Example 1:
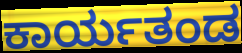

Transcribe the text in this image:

ಕಾರ್ಯತಂಡ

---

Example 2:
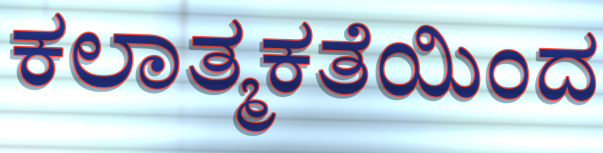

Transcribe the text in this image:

ಕಲಾತ್ಮಕತೆಯಿಂದ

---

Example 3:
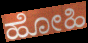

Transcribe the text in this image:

ಹೋಹಿ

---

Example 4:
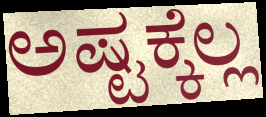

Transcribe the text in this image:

ಅಷ್ಟಕ್ಕೆಲ್ಲ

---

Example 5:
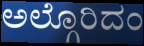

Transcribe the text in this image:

ಅಲ್ಗೊರಿದಂ